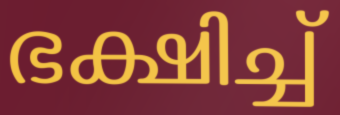
ഭക്ഷിച്ച്